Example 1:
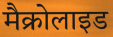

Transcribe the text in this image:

मैक्रोलाइड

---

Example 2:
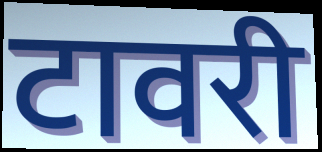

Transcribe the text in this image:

टावरी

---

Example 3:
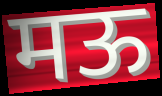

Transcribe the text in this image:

मऊ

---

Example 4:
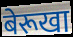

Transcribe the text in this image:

बेरूखा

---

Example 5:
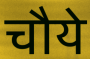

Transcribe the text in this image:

चौये